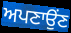
ਅਪਣਾਉਂਣ